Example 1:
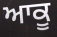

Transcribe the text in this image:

ਆਕੂ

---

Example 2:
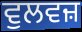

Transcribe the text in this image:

ਵੁਲਵਜ਼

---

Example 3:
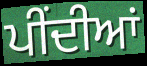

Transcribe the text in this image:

ਪੀਂਦੀਆਂ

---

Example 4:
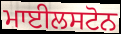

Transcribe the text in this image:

ਮਾਈਲਸਟੋਨ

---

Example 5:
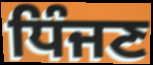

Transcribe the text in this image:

ਧਿੰਜਣ